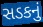
સડકનું